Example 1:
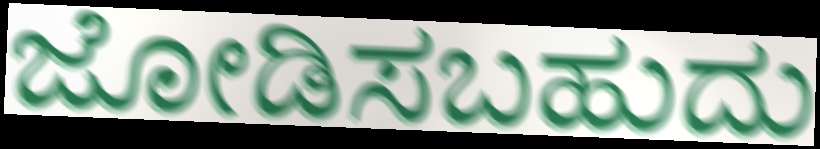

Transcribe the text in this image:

ಜೋಡಿಸಬಹುದು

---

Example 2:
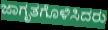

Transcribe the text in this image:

ಜಾಗೃತಗೊಳಿಸಿದರು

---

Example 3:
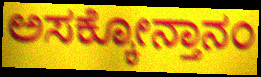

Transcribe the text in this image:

ಅಸಕ್ಕೋನ್ತಾನಂ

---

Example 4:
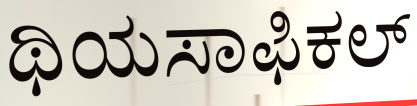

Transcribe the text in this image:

ಥಿಯಸಾಫಿಕಲ್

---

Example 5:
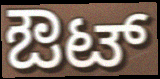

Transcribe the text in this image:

ಔಟ್